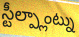
స్టీల్ప్లాంట్ను